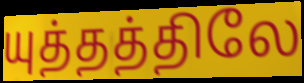
யுத்தத்திலே